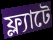
ফ্ল্যাটে